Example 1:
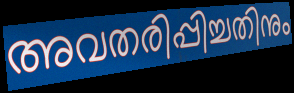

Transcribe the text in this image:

അവതരിപ്പിച്ചതിനും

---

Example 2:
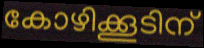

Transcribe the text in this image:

കോഴിക്കൂടിന്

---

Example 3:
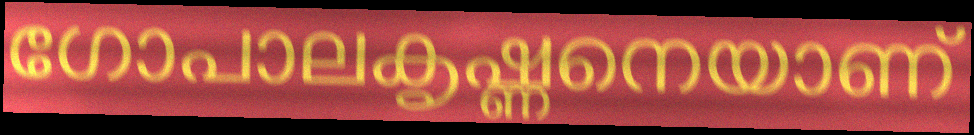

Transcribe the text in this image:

ഗോപാലകൃഷ്ണനെയാണ്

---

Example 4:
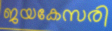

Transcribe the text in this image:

ജയകേസരി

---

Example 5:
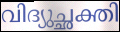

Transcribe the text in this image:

വിദ്യുച്ഛക്തി